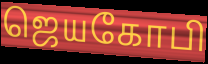
ஜெயகோபி